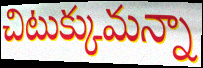
చిటుక్కుమన్నా